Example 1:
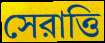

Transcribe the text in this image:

সেরাত্তি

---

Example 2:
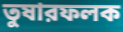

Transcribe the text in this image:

তুষারফলক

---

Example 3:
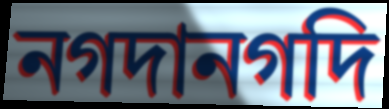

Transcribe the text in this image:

নগদানগদি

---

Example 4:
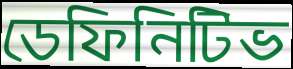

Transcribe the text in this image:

ডেফিনিটিভ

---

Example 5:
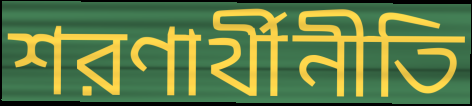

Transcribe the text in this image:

শরণার্থীনীতি